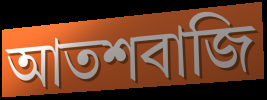
আতশবাজি